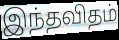
இந்தவிதம்